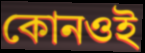
কোনওই